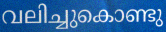
വലിച്ചുകൊണ്ടു